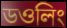
ডওলিং